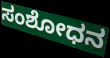
ಸಂಶೋಧನ